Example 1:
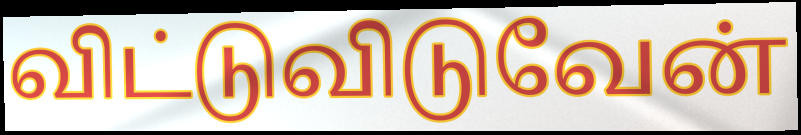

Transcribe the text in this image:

விட்டுவிடுவேன்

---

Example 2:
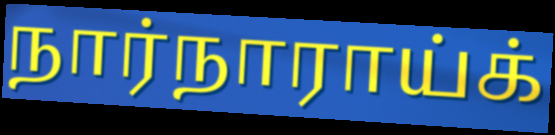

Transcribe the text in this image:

நார்நாராய்க்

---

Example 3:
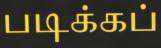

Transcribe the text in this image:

படிக்கப்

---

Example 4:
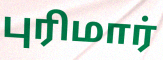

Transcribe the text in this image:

புரிமார்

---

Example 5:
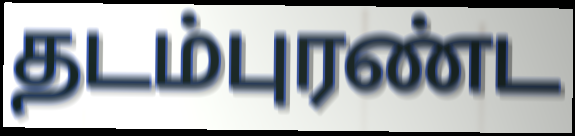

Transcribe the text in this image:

தடம்புரண்ட